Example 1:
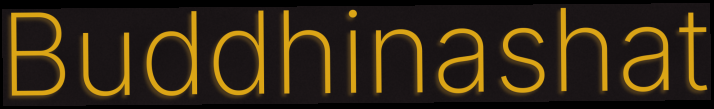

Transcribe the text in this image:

Buddhinashat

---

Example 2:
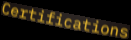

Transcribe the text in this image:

Certifications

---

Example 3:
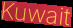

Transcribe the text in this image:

Kuwait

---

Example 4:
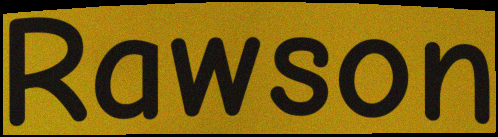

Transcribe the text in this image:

Rawson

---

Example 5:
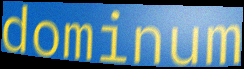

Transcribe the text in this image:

dominum